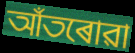
আঁতৰোৱা